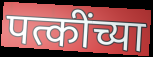
पत्कींच्या